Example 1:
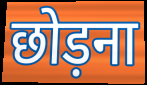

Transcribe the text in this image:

छोड़ना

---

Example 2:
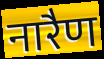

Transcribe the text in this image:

नारैण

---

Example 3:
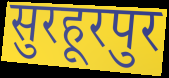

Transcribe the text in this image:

सुरहूरपुर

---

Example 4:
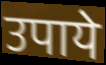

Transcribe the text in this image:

उपाये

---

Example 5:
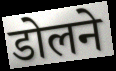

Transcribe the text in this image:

डोलने